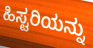
ಹಿಸ್ಟರಿಯನ್ನು